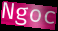
Ngoc